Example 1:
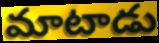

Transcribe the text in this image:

మాటాడు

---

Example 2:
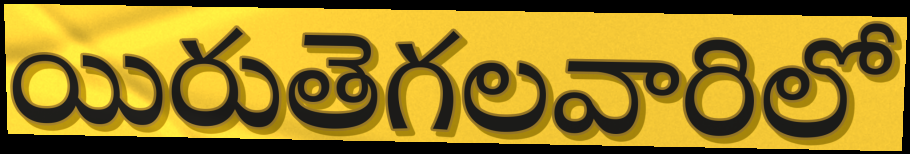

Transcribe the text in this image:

యిరుతెగలవారిలో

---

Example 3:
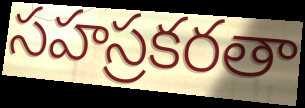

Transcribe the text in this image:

సహస్రకరతా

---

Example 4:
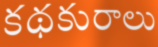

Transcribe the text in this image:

కథకురాలు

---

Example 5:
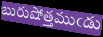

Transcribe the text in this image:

బురుషోత్తముఁడు